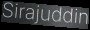
Sirajuddin